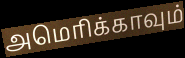
அமெரிக்காவும்